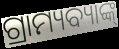
ଗ୍ରାମ୍ୟବ୍ୟାଙ୍କ୍